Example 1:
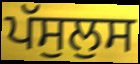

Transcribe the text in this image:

ਪੱਸੁਲੁਸ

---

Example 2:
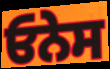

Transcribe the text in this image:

ਓਨੇਸ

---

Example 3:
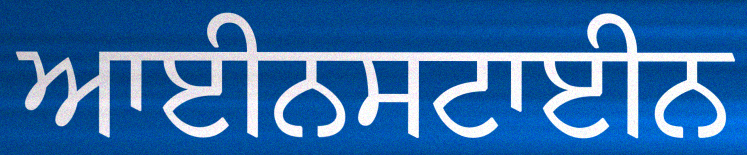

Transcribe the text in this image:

ਆਈਨਸਟਾਈਨ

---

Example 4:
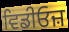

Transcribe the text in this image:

ਵਿਡੀਓਜ਼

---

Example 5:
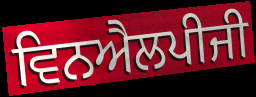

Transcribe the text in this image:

ਵਿਨਐਲਪੀਜੀ